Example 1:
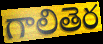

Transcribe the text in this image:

గాలితెర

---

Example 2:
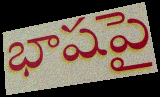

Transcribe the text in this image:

భాషపై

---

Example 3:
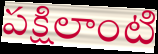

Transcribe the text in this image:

పక్షిలాంటి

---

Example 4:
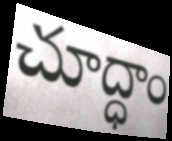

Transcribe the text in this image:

చూద్ధాం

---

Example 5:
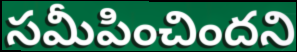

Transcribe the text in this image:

సమీపించిందని